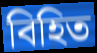
বিহিত